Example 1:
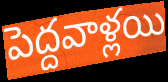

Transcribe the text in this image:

పెద్దవాళ్లయి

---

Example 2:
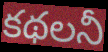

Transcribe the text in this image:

కథలనీ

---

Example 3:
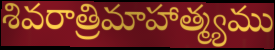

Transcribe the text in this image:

శివరాత్రిమాహాత్మ్యము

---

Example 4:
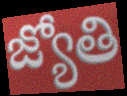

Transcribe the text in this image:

జ్యోతి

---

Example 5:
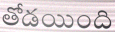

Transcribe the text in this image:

తోడయింది